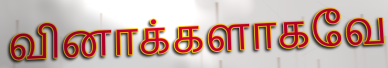
வினாக்களாகவே